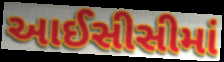
આઈસીસીમાં